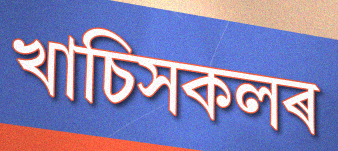
খাচিসকলৰ